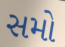
સમો